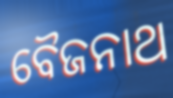
ବୈଜନାଥ